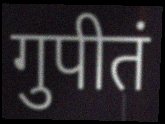
गुपीतं